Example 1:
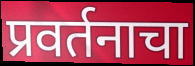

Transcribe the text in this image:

प्रवर्तनाचा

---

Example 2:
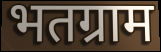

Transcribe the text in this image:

भतग्राम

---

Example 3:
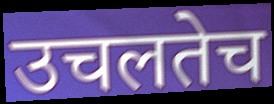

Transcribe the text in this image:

उचलतेच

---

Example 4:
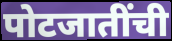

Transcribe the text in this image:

पोटजातींची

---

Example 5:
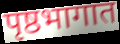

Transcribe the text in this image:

पृष्ठभागात